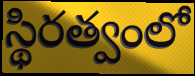
స్థిరత్వంలో